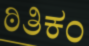
ಠಿತಿಕಂ